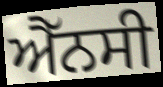
ਐੱਨਸੀ